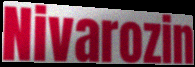
Nivarozin